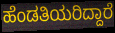
ಹೆಂಡತಿಯರಿದ್ದಾರೆ